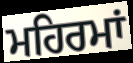
ਮਹਿਰਮਾਂ